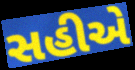
સહીએ